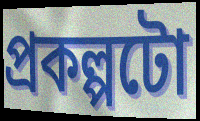
প্ৰকল্পটো